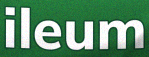
ileum